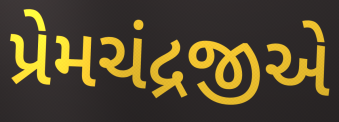
પ્રેમચંદ્રજીએ